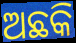
ଅଛକି